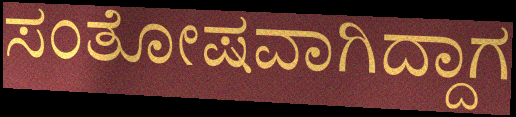
ಸಂತೋಷವಾಗಿದ್ದಾಗ